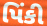
પિંકી